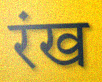
रंख